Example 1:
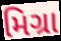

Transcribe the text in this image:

મિગ્રા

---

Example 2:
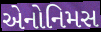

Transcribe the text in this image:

એનોનિમસ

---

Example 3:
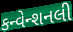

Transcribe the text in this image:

કન્વેન્શનલી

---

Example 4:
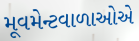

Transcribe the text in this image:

મૂવમેન્ટવાળાઓએ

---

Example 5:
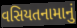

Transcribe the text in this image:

વસિયતનામાનું